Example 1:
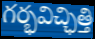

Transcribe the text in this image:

గర్భవిచ్ఛిత్తి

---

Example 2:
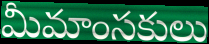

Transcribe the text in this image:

మీమాంసకులు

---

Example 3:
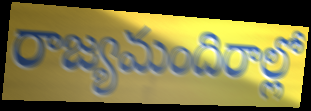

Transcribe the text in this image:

రాజ్యమందిరాల్లో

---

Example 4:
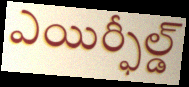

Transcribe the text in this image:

ఎయిర్ఫీల్డ్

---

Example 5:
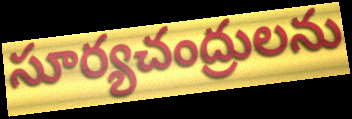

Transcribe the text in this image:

సూర్యచంద్రులను